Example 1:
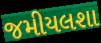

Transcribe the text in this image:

જમીયલશા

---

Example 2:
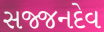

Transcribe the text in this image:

સજ્જનદેવ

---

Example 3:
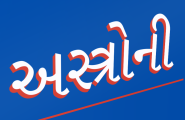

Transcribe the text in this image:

અસ્ત્રોની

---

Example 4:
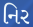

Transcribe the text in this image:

નિર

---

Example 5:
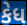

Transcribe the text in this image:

કેધ